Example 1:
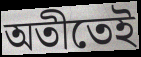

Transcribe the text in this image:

অতীতেই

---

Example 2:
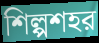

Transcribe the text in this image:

শিল্পশহর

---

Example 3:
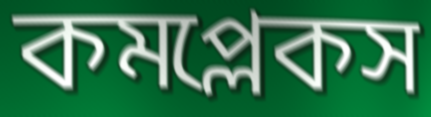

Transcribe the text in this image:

কমপ্লেকস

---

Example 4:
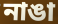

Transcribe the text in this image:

নাঙা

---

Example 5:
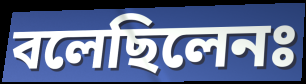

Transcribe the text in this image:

বলেছিলেনঃ